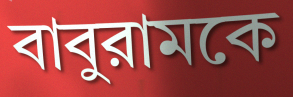
বাবুরামকে